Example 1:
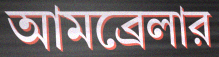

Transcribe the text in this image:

আমব্রেলার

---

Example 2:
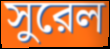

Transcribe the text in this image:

সুরেল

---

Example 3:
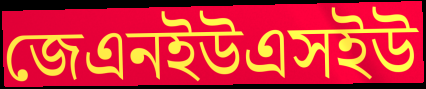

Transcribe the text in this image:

জেএনইউএসইউ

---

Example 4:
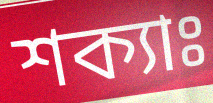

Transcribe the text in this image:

শক্যাঃ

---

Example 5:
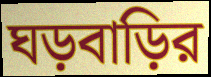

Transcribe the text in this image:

ঘড়বাড়ির